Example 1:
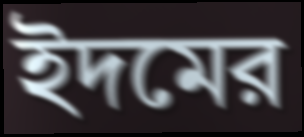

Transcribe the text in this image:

ইদমের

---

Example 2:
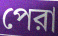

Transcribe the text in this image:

পেরা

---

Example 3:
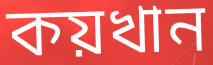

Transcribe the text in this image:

কয়খান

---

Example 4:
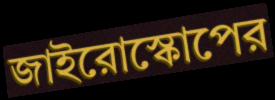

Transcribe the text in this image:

জাইরোস্কোপের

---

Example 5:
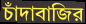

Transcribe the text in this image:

চাঁদাবাজির